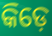
କିଡ଼େ